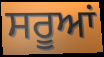
ਸਰੂਆਂ